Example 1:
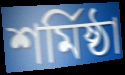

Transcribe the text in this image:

শর্মিষ্ঠা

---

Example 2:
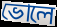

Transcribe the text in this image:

ভোলে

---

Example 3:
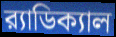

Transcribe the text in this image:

র‍্যাডিক্যাল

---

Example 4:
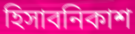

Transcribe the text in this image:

হিসাবনিকাশ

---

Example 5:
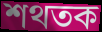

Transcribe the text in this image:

শথতক